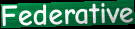
Federative